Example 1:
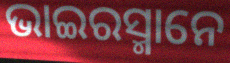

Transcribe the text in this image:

ଭାଇରସ୍ମାନେ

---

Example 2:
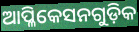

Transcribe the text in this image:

ଆପ୍ଳିକେସନଗୁଡ଼ିକ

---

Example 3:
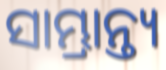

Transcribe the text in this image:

ସାମ୍ଭ୍ରାନ୍ତ୍ୟ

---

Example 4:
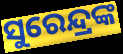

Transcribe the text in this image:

ସୁରେନ୍ଦ୍ରଙ୍କ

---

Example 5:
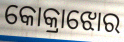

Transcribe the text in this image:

କୋକ୍ରାଝୋର